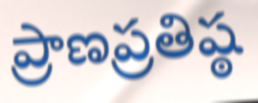
ప్రాణప్రతిష్ఠ